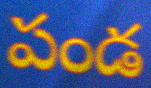
పండ